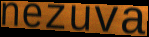
nezuva